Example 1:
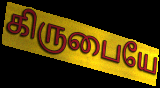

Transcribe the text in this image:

கிருபையே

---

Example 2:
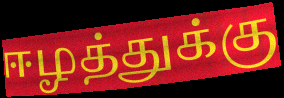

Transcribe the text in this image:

ஈழத்துக்கு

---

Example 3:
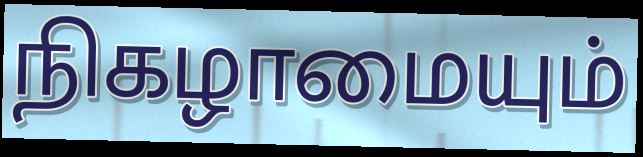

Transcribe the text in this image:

நிகழாமையும்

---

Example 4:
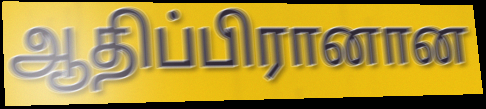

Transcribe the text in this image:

ஆதிப்பிரானான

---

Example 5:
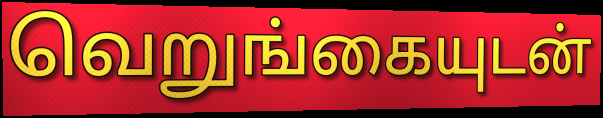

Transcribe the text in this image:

வெறுங்கையுடன்